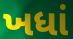
ખધાં